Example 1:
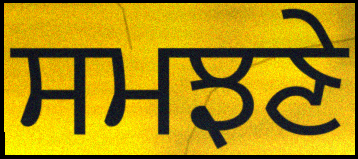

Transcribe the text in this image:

ਸਮਝਣੇ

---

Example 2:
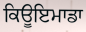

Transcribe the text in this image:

ਕਿਊਇਮਾਡਾ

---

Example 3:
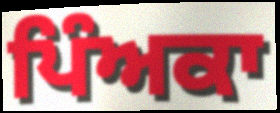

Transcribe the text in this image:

ਪਿੰਅਕਾ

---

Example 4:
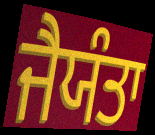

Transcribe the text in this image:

ਜੈਯੰਤਾ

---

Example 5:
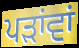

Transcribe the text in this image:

ਪੜਾਂਵਾਂ